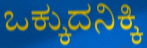
ಒಕ್ಕುದನಿಕ್ಕಿ